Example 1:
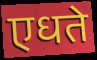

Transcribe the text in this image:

एधते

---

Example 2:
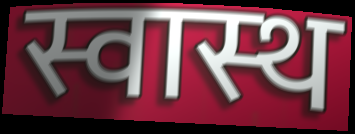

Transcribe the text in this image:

स्वास्थ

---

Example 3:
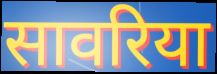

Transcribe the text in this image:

सावरिया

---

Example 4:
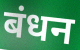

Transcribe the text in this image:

बंधन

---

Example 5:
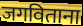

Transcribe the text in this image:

जगविताना